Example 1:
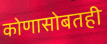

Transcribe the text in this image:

कोणासोबतही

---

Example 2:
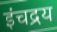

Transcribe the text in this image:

इंचद्रय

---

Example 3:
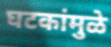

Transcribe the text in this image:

घटकांमुळे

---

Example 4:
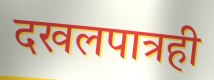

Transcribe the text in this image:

दखलपात्रही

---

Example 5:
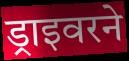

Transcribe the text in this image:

ड्राइवरने